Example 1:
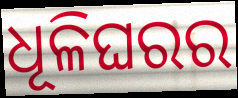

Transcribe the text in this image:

ଧୂଳିଘରର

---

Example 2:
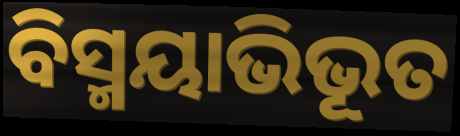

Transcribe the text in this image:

ବିସ୍ମୟାଭିଭୂତ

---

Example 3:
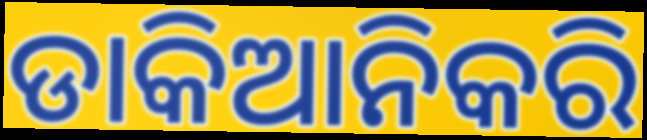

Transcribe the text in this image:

ଡାକିଆନିକରି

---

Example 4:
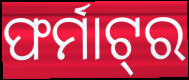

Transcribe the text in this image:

ଫର୍ମାଟ୍‌ର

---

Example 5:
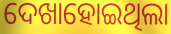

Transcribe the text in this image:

ଦେଖାହୋଇଥିଲା